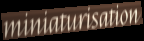
miniaturisation